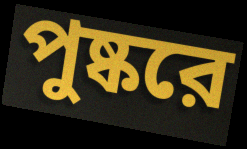
পুষ্করে